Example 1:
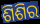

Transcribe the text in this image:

ଶିଶିର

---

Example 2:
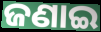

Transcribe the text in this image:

ଜଣାଇ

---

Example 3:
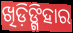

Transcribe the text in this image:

ଖିଡ଼ିଙ୍ଗିହାର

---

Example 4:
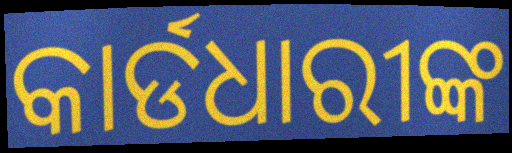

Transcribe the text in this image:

କାର୍ଡଧାରୀଙ୍କ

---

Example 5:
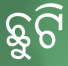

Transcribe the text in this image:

ଛୁଟି